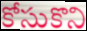
కోసుకొని